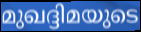
മുഖദ്ദിമയുടെ